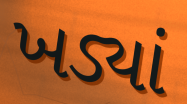
ખડ્યાં